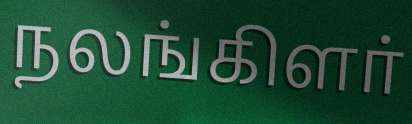
நலங்கிளர்